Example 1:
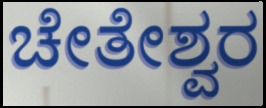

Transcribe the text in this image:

ಚೇತೇಶ್ವರ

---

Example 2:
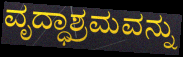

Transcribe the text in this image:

ವೃದ್ಧಾಶ್ರಮವನ್ನು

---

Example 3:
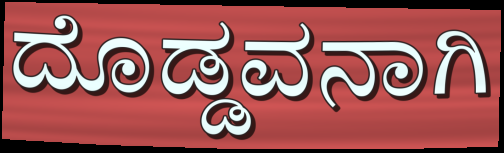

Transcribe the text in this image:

ದೊಡ್ಡವನಾಗಿ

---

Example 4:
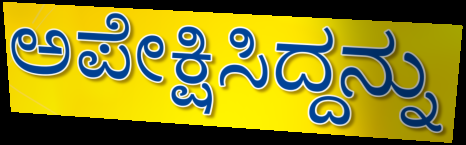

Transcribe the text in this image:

ಅಪೇಕ್ಷಿಸಿದ್ದನ್ನು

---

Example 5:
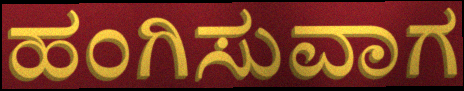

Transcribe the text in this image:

ಹಂಗಿಸುವಾಗ